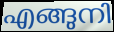
എങ്ങുനി